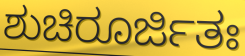
ಶುಚಿರೂರ್ಜಿತಃ